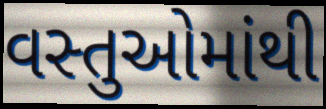
વસ્તુઓમાંથી